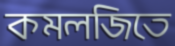
কমলজিতে